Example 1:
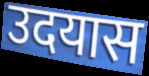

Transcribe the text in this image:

उदयास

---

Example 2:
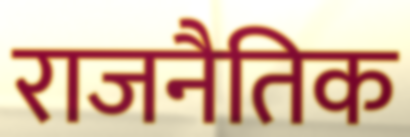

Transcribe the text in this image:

राजनैतिक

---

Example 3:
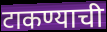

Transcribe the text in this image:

टाकण्याची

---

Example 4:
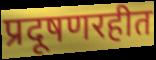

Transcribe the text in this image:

प्रदूषणरहीत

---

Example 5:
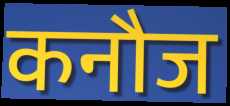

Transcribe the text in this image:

कनौज